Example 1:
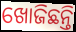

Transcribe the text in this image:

ଖୋଜିଛନ୍ତି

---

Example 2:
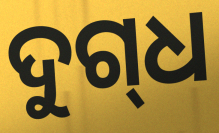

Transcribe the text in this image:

ଦୁଗ୍‌ଧ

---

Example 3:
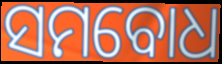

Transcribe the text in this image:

ସମବୋଧ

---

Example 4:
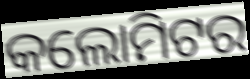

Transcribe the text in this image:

କଲୋମିଟର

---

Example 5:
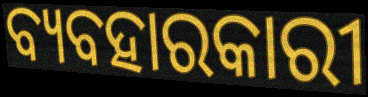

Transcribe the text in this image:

ବ୍ୟବହାରକାରୀ